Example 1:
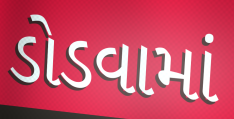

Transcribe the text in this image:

ડોડવામાં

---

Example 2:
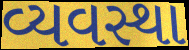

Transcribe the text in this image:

વ્યવસ્થા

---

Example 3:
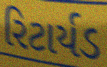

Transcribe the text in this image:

રિટાર્યડ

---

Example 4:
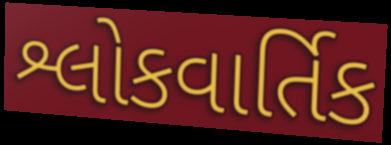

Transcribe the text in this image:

શ્લોકવાર્તિક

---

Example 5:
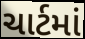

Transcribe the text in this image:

ચાર્ટમાં